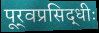
पूर्वप्रसिद्धीः